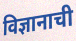
विज्ञानाची